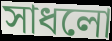
সাধলো